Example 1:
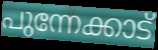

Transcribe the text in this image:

പുന്നേക്കാട്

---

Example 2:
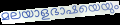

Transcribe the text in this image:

മലയാളഭാഷയെയും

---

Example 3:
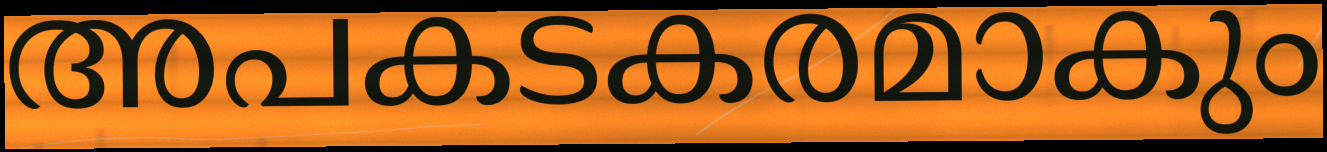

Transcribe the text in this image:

അപകടകരമാകും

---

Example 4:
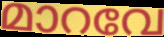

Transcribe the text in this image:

മാറവേ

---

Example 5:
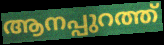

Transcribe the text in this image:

ആനപ്പുറത്ത്